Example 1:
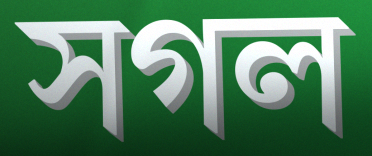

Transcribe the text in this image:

সগল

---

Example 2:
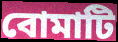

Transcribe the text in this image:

বোমাটি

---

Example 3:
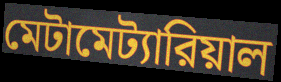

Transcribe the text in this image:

মেটামেট্যারিয়াল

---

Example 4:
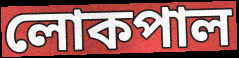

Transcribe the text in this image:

লোকপাল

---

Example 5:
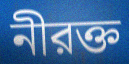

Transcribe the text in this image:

নীরক্ত